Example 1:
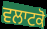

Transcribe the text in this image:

ਵਲਾਟਕੋ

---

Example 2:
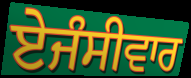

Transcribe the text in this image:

ਏਜੰਸੀਵਾਰ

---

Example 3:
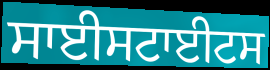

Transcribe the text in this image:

ਸਾਈਸਟਾਈਟਸ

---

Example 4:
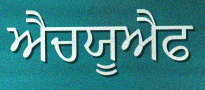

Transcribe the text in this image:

ਐਚਯੂਐਫ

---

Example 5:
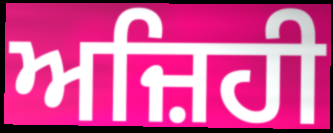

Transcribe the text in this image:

ਅਜ਼ਿਹੀ